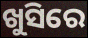
ଖୁସିରେ